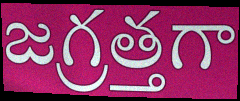
జగ్రత్తగా